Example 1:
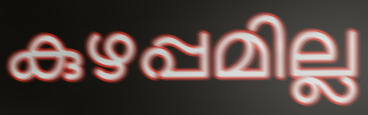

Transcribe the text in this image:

കുഴപ്പമില്ല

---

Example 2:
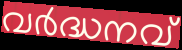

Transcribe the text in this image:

വർദ്ധനവ്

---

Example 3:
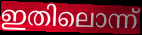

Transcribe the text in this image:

ഇതിലൊന്ന്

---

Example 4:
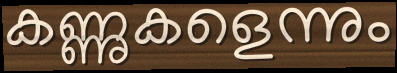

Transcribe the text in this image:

കണ്ണുകളെന്നും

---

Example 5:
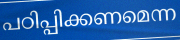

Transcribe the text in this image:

പഠിപ്പിക്കണമെന്ന